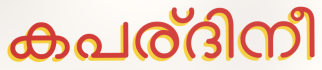
കപര്ദിനീ